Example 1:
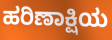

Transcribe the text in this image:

ಹರಿಣಾಕ್ಷಿಯ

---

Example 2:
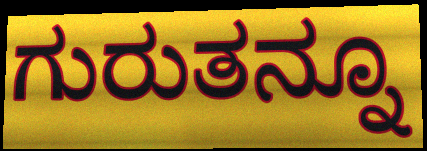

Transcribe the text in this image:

ಗುರುತನ್ನೂ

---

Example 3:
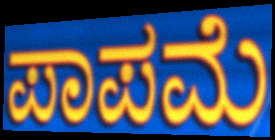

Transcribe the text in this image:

ಪಾಪಮೆ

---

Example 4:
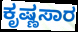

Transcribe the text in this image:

ಕೃಷ್ಣಸಾರ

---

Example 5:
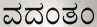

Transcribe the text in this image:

ವದಂತಂ